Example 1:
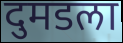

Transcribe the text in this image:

दुमडला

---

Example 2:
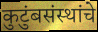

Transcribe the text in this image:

कुटुंबसंस्थांचे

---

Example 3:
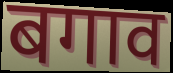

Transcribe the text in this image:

बगाव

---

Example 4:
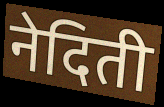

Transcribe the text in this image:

नेदिती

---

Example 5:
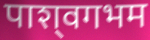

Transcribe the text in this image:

पाश्वगभम